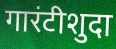
गारंटीशुदा